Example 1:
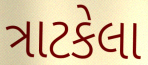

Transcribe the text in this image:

ત્રાટકેલા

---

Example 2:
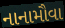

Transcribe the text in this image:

નાનામૌવા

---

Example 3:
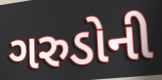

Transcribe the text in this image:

ગરુડોની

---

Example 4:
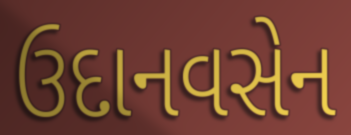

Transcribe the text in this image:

ઉદાનવસેન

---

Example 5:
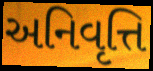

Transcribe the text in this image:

અનિવૃત્તિ